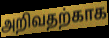
அறிவதற்காக